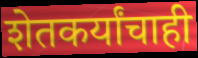
शेतकर्यांचाही